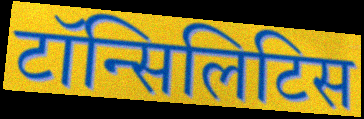
टॉन्सिलिटिस